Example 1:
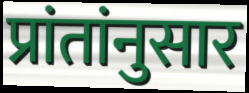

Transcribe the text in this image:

प्रांतांनुसार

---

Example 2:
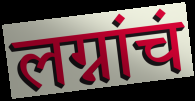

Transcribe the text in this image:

लग्नांचं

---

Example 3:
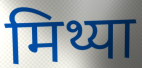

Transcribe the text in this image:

मिथ्या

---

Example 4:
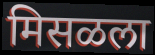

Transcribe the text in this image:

मिसळला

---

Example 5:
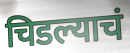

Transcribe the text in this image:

चिडल्याचं